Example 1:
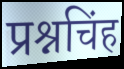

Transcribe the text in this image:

प्रश्नचिंह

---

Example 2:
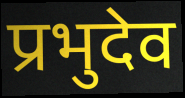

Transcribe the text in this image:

प्रभुदेव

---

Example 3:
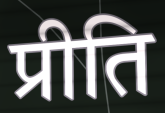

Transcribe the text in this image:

प्रीति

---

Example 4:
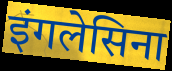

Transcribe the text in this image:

इंगलेसिना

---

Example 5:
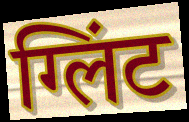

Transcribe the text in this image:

ग्लिंट